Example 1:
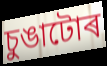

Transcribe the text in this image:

চুঙাটোৰ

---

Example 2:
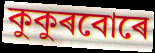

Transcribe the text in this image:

কুকুৰবোৰে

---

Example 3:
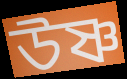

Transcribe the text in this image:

উষ্ণ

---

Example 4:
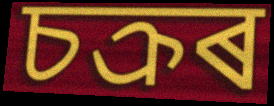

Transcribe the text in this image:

চক্ৰৰ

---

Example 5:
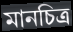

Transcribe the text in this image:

মানচিত্ৰ